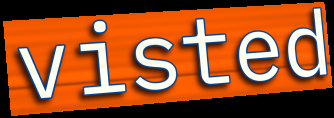
visted